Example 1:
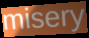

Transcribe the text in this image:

misery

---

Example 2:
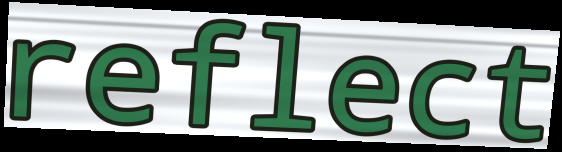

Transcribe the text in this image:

reflect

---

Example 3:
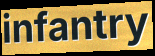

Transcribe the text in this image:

infantry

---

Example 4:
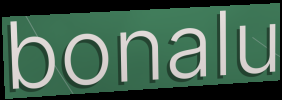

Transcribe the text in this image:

bonalu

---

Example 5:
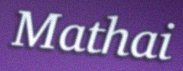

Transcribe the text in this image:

Mathai